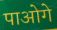
पाओगे